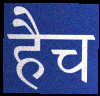
हैच